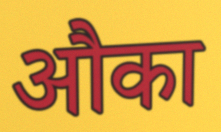
औका